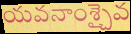
యవనాంశ్చైవ